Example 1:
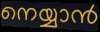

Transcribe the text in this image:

നെയ്യാൻ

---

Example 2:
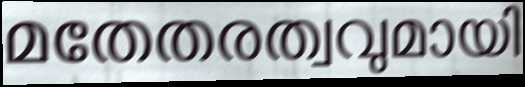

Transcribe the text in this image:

മതേതരത്വവുമായി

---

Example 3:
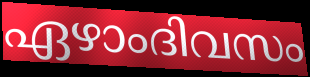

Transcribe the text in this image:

ഏഴാംദിവസം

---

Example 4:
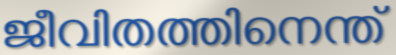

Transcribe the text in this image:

ജീവിതത്തിനെന്ത്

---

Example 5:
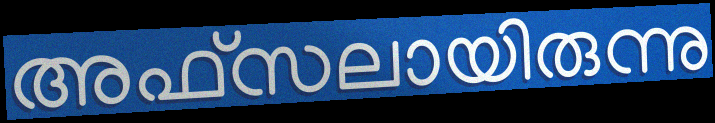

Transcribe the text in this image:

അഫ്സലായിരുന്നു